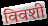
विवशी